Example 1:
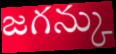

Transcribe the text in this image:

జగన్కు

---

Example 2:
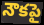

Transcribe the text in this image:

నౌకపై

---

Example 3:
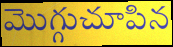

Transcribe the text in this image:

మొగ్గుచూపిన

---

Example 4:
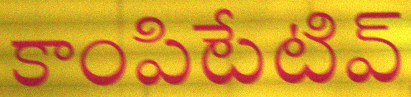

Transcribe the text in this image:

కాంపిటేటివ్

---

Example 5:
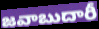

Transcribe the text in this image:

జవాబుదారీ